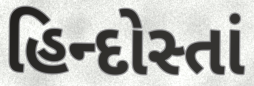
હિન્દોસ્તાં